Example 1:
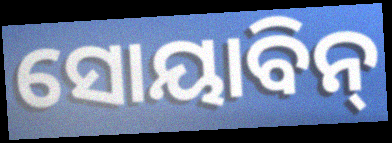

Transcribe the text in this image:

ସୋୟାବିନ୍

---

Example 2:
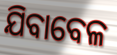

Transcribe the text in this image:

ଯିବାବେଳ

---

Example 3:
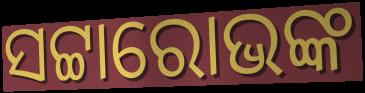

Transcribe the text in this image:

ସଟ୍ଟାରୋଭଙ୍କ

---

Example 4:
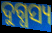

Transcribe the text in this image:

ଦୁଗ୍ଧସ୍ୟ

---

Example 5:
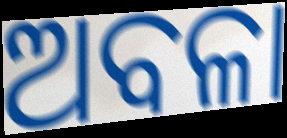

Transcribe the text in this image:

ଅବଳା